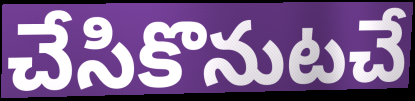
చేసికొనుటచే